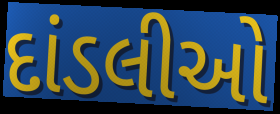
દાંડલીઓ